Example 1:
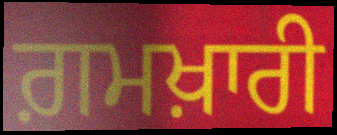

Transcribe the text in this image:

ਗ਼ਮਖ਼ਾਰੀ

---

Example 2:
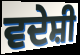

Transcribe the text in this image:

ਵਦੇਸ਼ੀ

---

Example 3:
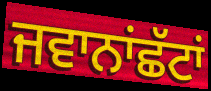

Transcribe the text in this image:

ਜਵਾਨਾਂਛੱਟਾਂ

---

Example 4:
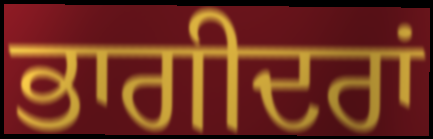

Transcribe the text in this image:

ਭਾਗੀਦਰਾਂ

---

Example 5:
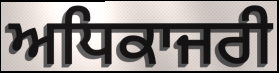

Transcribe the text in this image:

ਅਧਿਕਾਜਰੀ